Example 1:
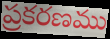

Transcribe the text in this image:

ప్రకరణము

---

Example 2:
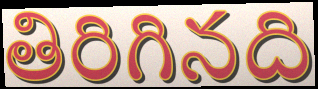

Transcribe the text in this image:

తిరిగినది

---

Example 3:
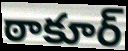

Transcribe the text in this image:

ఠాకూర్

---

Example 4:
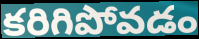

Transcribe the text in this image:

కరిగిపోవడం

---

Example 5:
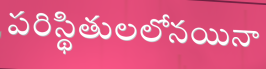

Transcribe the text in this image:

పరిస్థితులలోనయినా